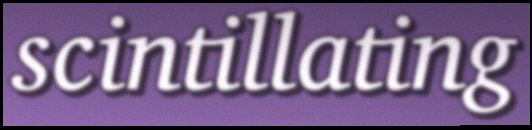
scintillating